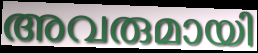
അവരുമായി